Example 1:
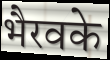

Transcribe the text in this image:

भैरवके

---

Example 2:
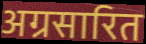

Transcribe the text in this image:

अग्रसारित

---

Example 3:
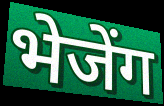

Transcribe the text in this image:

भेजेंग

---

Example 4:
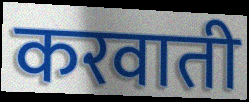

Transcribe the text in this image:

करवाती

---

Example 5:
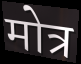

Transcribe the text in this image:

मोत्र